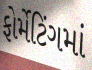
ફોર્મેટિંગમાં